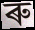
ৰু